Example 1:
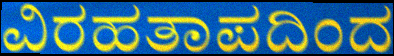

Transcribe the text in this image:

ವಿರಹತಾಪದಿಂದ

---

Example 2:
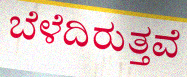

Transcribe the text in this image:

ಬೆಳೆದಿರುತ್ತವೆ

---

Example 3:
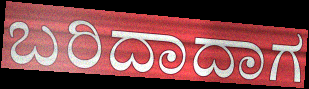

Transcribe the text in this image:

ಬರಿದಾದಾಗ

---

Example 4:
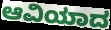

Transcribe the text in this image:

ಆವಿಯಾದ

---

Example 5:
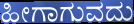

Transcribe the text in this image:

ಹೀಗಾಗುವದು